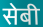
सेबी